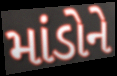
માંડોને